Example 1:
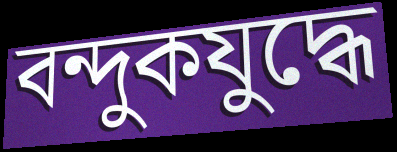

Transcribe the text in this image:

বন্দুকযুদ্ধে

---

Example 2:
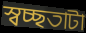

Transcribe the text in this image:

স্বচ্ছতাটা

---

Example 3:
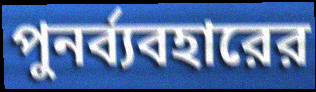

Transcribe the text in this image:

পুনর্ব্যবহারের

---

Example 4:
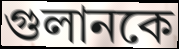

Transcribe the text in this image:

গুলানকে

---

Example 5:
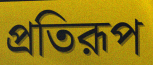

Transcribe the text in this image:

প্রতিরূপ